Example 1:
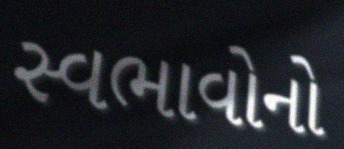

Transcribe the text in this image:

સ્વભાવોનો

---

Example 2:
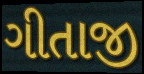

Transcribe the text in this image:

ગીતાજી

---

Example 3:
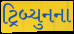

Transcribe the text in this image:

ટ્રિબ્યુનના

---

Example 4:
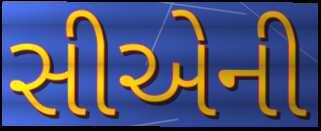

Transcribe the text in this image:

સીએની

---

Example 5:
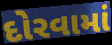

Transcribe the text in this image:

દોરવામાં